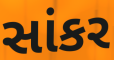
સાંકર